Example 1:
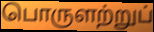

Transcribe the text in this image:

பொருளற்றுப்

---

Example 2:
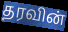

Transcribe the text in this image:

தரவின்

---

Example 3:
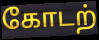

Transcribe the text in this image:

கோடற்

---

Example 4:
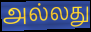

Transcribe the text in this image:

அல்லது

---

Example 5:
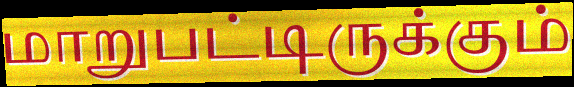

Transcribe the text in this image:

மாறுபட்டிருக்கும்